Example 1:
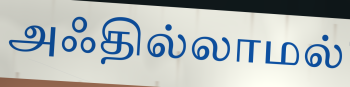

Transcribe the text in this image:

அஃதில்லாமல்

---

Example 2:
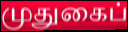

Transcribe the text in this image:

முதுகைப்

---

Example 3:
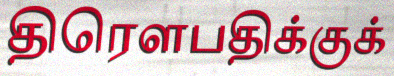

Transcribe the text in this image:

திரௌபதிக்குக்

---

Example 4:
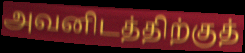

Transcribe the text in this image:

அவனிடத்திற்குத்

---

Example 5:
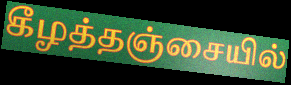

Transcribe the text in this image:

கீழத்தஞ்சையில்